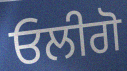
ਓਲੀਗੋ